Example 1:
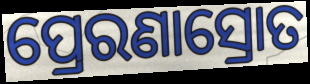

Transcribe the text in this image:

ପ୍ରେରଣାସ୍ରୋତ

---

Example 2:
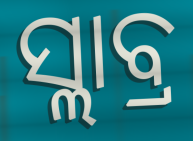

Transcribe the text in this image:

ସ୍ଲାବ୍ର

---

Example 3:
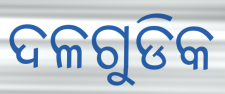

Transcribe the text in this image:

ଦଳଗୁଡିକ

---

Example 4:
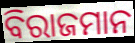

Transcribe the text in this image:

ବିରାଜମାନ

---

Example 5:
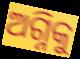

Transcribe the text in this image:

ଅଗ୍ନିକୁ